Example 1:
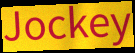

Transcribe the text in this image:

Jockey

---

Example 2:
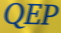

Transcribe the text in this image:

QEP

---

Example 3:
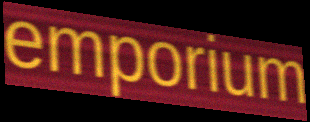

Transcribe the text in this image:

emporium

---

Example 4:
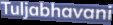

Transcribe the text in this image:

Tuljabhavani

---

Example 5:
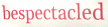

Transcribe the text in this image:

bespectacled